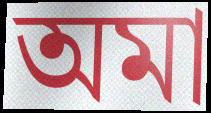
অমা